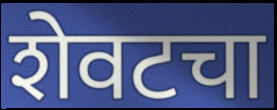
शेवटचा